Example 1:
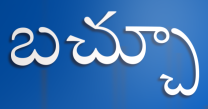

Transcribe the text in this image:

బచ్చూ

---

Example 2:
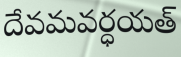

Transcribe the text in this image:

దేవమవర్ధయత్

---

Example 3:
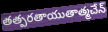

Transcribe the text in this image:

తత్పరతాయుతాత్మచేన్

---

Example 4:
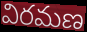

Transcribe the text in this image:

విరమణ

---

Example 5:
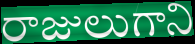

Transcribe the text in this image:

రాజులుగాని